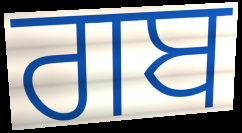
ਗਬ